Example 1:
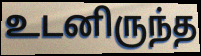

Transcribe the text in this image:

உடனிருந்த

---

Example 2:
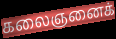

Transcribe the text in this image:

கலைஞனைக்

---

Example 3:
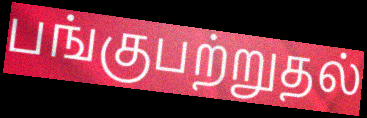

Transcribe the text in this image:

பங்குபற்றுதல்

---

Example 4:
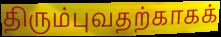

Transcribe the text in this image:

திரும்புவதற்காகக்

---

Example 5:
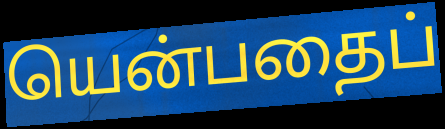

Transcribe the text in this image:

யென்பதைப்